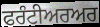
ਫਰੰਟੀਅਰਅਰ